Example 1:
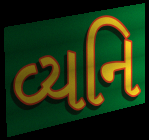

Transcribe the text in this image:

વ્યનિ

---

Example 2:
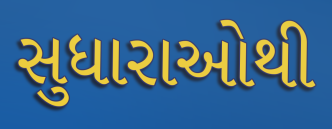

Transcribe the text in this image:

સુધારાઓથી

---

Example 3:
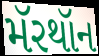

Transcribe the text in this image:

મૅરથૉન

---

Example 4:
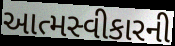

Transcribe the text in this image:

આત્મસ્વીકારની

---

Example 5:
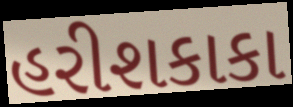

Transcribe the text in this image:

હરીશકાકા